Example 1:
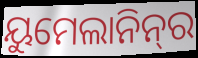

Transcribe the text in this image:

ୟୁମେଲାନିନ୍‌ର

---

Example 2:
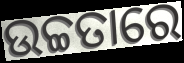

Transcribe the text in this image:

ଉଚ୍ଚତାରେ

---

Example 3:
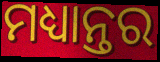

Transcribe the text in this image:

ମଧ୍ୟାନ୍ତର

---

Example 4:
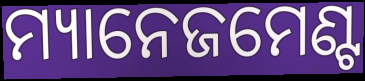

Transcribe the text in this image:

ମ୍ୟାନେଜମେଣ୍ଟ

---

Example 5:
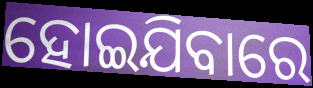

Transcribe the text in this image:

ହୋଇଯିବାରେ